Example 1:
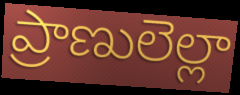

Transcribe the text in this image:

ప్రాణులెల్లా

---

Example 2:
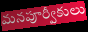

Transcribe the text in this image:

మనపూర్వీకులు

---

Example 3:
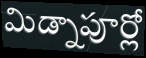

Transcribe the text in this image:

మిడ్నాపూర్లో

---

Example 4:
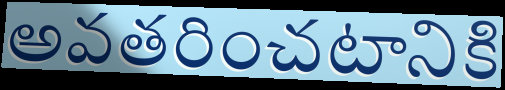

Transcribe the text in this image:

అవతరించటానికి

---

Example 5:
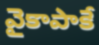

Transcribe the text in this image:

వైకాపాకే